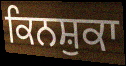
ਕਿਨਸ਼ੁਕਾ